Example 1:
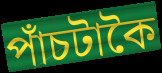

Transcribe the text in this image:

পাঁচটাকৈ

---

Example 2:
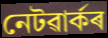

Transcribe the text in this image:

নেটৱাৰ্কৰ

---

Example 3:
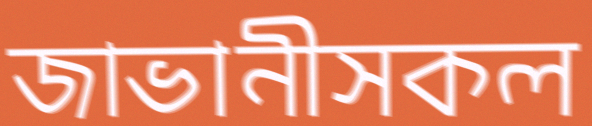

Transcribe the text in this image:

জাভানীসকল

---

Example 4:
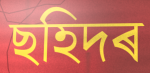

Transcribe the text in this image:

ছহিদৰ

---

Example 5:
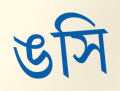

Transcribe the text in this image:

ঙসি